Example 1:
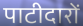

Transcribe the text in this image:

पाटीदारों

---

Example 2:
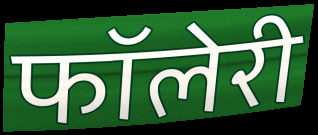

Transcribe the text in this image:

फॉलेरी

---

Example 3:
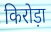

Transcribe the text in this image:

किरोड़ा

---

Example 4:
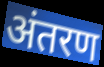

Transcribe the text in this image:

अंतरण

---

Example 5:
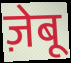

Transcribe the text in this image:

ज़ेबू